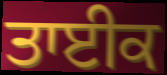
ਤਾਈਕ